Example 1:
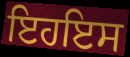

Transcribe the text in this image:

ਇਹਇਸ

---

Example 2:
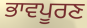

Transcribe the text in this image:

ਭਾਵਪੂਰਣ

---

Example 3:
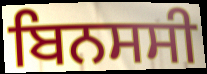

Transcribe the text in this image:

ਬਿਨਸਸੀ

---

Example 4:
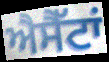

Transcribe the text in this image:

ਐਸੈੱਟਾਂ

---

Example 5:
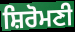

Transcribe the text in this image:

ਸ਼ਿਰੋਮਣੀ